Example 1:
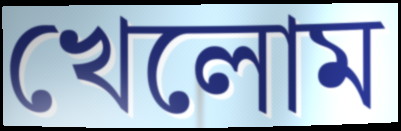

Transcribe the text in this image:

খেলোম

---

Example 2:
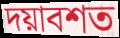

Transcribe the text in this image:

দয়াবশত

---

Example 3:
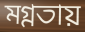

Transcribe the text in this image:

মগ্নতায়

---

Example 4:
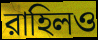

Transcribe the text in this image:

রাহিলও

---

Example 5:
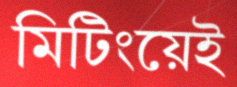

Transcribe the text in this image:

মিটিংয়েই